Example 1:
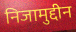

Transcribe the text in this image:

निजामुद्दीन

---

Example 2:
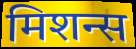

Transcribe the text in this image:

मिशन्स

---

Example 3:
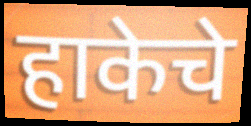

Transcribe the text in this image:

हाकेचे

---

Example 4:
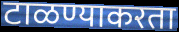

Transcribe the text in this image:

टाळण्याकरता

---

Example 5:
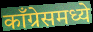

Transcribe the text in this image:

काँग्रेसमध्ये